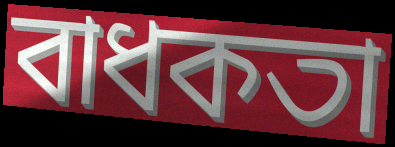
বাধকতা